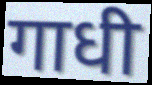
गाधी